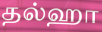
தல்ஹா